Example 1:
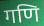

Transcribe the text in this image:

गणि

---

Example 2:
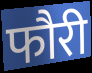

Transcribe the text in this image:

फौरी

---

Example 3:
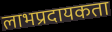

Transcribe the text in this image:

लाभप्रदायकता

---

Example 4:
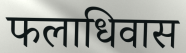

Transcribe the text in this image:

फलाधिवास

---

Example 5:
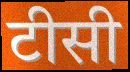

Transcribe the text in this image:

टीसी